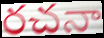
రచనా